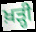
ਖ਼ੜ੍ਹੀ